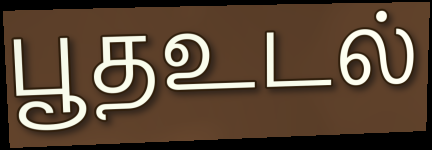
பூதஉடல்